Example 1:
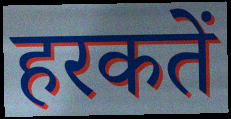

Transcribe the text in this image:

हरकतें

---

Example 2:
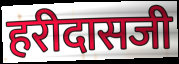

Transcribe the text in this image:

हरीदासजी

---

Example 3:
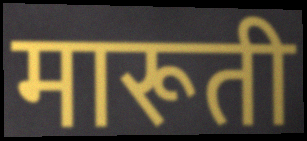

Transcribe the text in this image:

मारूती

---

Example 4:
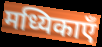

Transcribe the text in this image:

मध्यिकाएँ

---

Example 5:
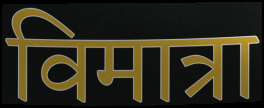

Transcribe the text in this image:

विमात्रा